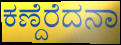
ಕಣ್ದೆರೆದನಾ